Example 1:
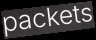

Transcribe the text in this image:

packets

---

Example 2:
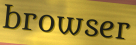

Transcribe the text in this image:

browser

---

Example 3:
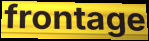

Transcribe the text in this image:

frontage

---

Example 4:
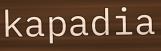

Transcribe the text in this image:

kapadia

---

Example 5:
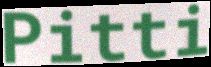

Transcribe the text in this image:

Pitti